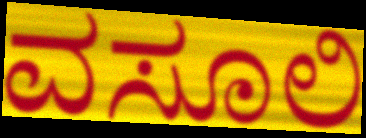
ವಸೂಲಿ